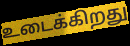
உடைக்கிறது